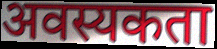
अवस्यकता